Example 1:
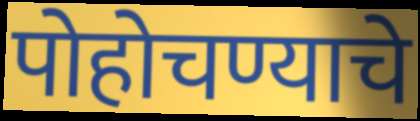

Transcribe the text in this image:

पोहोचण्याचे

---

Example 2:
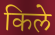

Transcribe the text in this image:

किले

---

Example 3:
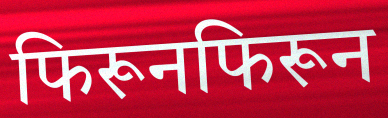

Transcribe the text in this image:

फिरूनफिरून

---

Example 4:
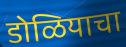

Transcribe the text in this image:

डोळियाचा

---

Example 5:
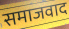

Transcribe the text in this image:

समाजवाद